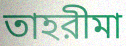
তাহরীমা